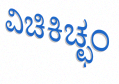
ವಿಚಿಕಿಚ್ಛಂ